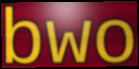
bwo